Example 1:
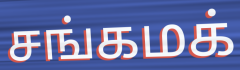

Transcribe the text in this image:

சங்கமக்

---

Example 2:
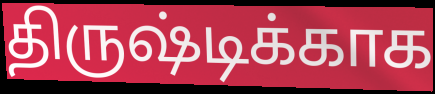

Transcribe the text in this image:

திருஷ்டிக்காக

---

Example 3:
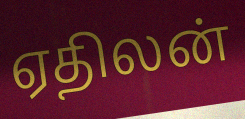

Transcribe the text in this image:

ஏதிலன்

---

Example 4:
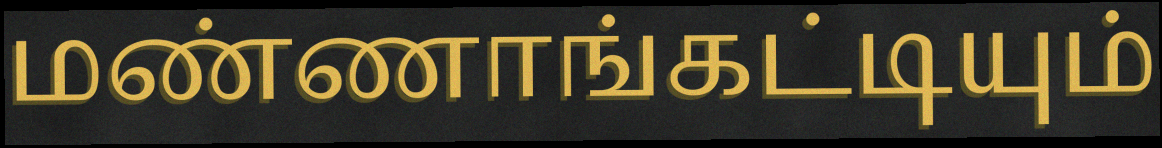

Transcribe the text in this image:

மண்ணாங்கட்டியும்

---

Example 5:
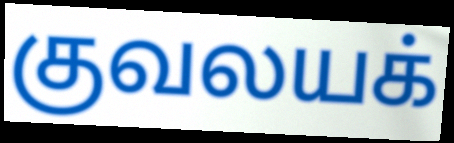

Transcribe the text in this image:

குவலயக்